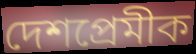
দেশপ্রেমীক